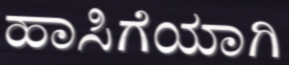
ಹಾಸಿಗೆಯಾಗಿ